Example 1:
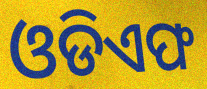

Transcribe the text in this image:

ଓଡିଏଫ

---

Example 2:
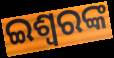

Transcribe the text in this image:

ଇଶ୍ୱରଙ୍କ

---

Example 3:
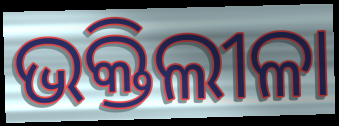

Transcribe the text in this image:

ଭକ୍ତିଲୀଳା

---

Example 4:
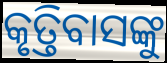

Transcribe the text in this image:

କୃତ୍ତିବାସଙ୍କୁ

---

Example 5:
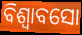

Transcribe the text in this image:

ବିଶ୍ୱାବସୋ